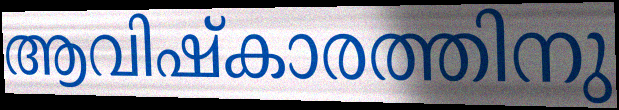
ആവിഷ്കാരത്തിനു